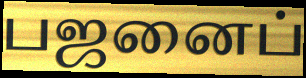
பஜனைப்